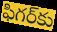
ఫిగర్‌కు